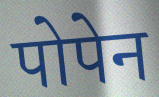
पोपेन